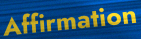
Affirmation